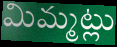
మిమ్మట్లు